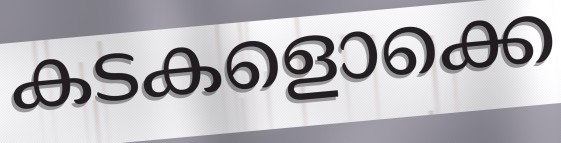
കടകളൊക്കെ